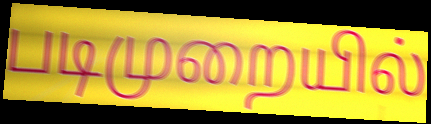
படிமுறையில்